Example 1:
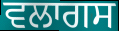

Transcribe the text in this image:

ਵਲਾਗਸ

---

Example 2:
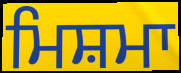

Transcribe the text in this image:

ਮਿਸ਼ਮਾ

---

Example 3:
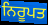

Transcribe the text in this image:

ਨਿਰੂਪਤ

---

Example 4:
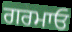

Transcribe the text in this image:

ਗਰਮਾਓ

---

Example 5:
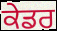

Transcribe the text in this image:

ਕੇਡਰ